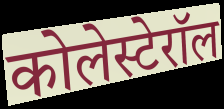
कोलेस्टेरॉल